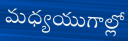
మధ్యయుగాల్లో